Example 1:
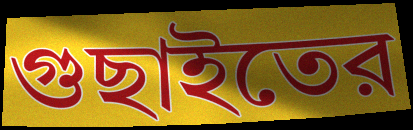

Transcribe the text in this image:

গুছাইতের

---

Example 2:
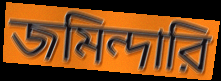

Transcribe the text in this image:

জমিন্দারি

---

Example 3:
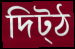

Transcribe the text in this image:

দিট্ঠ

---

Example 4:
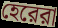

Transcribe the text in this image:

হেরেরা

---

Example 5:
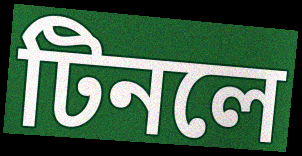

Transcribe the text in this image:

টিনলে